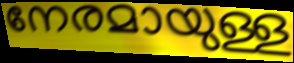
നേരമായുള്ള